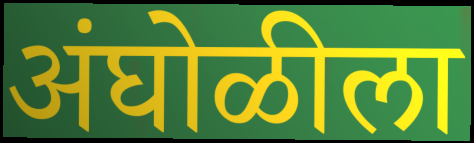
अंघोळीला